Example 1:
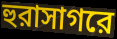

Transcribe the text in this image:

হুরাসাগরে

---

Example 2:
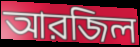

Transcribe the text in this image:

আরজিল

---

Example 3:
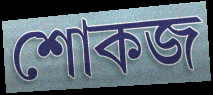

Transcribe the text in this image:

শোকজ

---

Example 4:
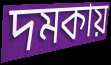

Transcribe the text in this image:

দমকায়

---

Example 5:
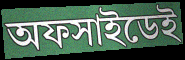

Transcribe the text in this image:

অফসাইডেই